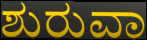
ಶುರುವಾ